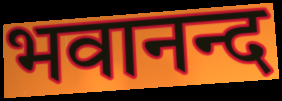
भवानन्द